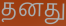
தனது